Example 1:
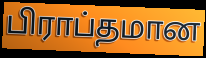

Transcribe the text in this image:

பிராப்தமான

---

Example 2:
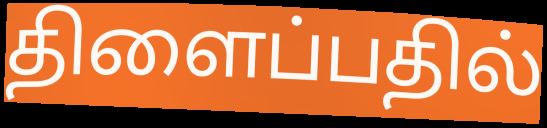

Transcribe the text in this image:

திளைப்பதில்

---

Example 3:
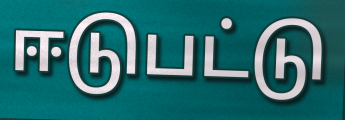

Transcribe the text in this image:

ஈடுபட்டு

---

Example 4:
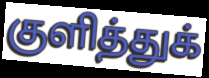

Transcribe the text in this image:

குளித்துக்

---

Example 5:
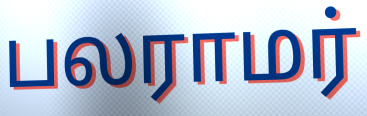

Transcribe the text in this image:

பலராமர்